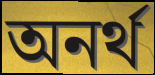
অনর্থ